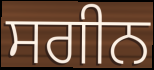
ਸਗੀਨ